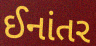
ઈનાંતર